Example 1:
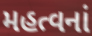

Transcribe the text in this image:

મહત્વનાં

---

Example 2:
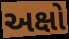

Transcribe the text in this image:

અક્ષો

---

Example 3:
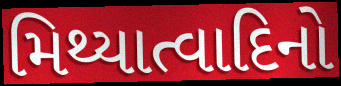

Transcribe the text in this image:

મિથ્યાત્વાદિનો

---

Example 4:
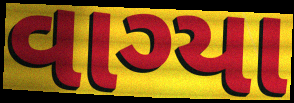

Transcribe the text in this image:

વાગ્યા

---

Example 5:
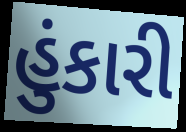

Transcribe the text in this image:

હુંકારી